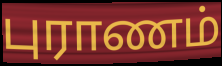
புராணம்